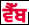
ਵੈੱਬ